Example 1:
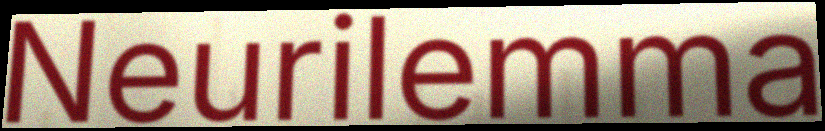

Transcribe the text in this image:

Neurilemma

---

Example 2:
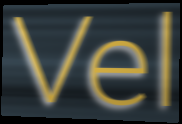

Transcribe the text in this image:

Vel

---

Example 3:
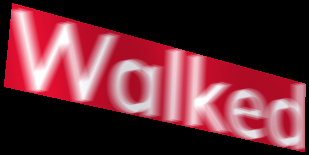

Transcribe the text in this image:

Walked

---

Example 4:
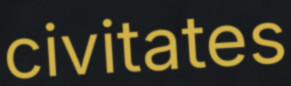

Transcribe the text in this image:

civitates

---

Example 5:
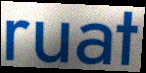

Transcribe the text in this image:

ruat